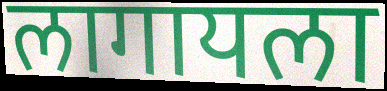
लागायला